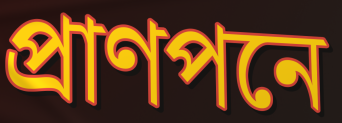
প্রাণপনে